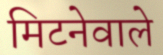
मिटनेवाले